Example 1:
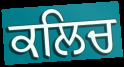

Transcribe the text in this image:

ਕਲਿਚ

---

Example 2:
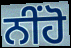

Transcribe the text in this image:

ਨੀਂਹੋ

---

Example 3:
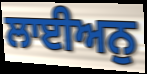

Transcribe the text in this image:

ਲਾਈਅਨੁ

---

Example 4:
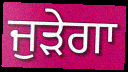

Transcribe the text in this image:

ਜੁੜੇਗਾ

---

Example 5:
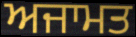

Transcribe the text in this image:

ਅਜਾਮਤ